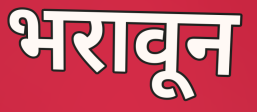
भरावून